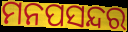
ମନପସନ୍ଦର